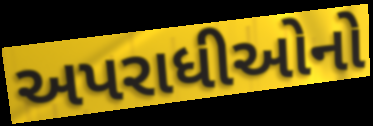
અપરાધીઓનો